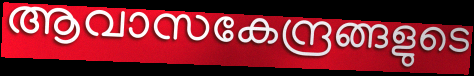
ആവാസകേന്ദ്രങ്ങളുടെ